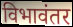
विभावंतर